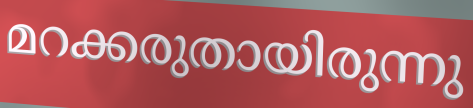
മറക്കരുതായിരുന്നു